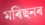
মৰিছনৰ